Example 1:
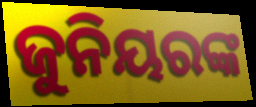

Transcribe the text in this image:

ଜୁନିୟରଙ୍କ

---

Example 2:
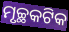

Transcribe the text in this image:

ମୃଚ୍ଛକଟିକ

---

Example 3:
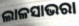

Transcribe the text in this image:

ଲାଳସାଭରା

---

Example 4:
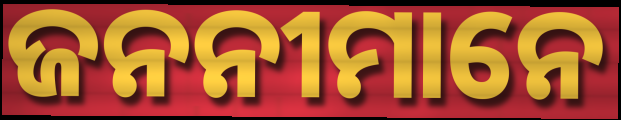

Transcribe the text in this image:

ଜନନୀମାନେ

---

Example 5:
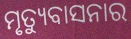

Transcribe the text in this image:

ମୃତ୍ୟୁବାସନାର